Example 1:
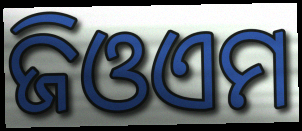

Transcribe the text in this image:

ଜିଓଏମ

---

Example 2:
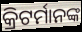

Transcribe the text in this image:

କ୍ରିଟର୍ମାନଙ୍କ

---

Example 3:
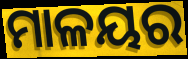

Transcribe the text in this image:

ମାଳୟର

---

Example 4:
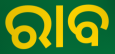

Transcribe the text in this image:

ରାବ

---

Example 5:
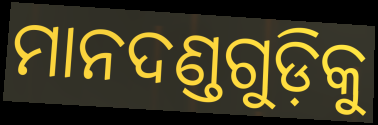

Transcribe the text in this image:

ମାନଦଣ୍ଡଗୁଡ଼ିକୁ